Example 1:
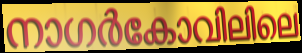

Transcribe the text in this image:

നാഗർകോവിലിലെ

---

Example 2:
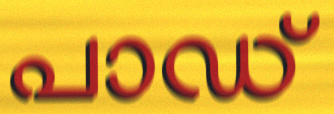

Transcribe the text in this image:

പാഡ്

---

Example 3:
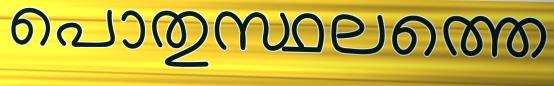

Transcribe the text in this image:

പൊതുസ്ഥലത്തെ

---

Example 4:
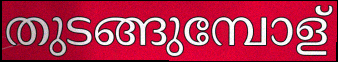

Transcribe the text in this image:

തുടങ്ങുമ്പോള്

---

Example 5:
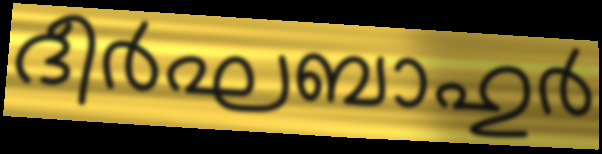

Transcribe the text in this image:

ദീർഘബാഹുർ